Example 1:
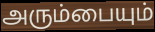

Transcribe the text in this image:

அரும்பையும்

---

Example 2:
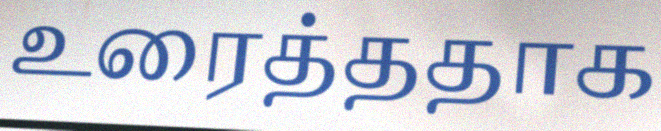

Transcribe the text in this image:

உரைத்ததாக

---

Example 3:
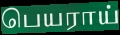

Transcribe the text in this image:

பெயராய்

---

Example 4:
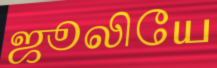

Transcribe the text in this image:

ஜூலியே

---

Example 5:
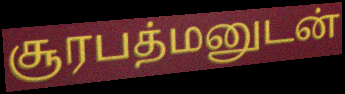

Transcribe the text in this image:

சூரபத்மனுடன்